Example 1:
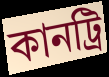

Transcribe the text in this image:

কানট্রি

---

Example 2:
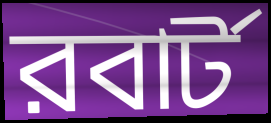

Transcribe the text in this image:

রবার্ট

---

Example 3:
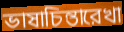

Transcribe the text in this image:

ভাষাচিন্তারেখা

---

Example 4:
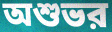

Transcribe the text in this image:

অশুভর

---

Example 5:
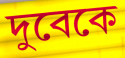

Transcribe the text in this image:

দুবেকে